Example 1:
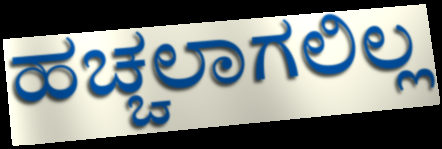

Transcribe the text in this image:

ಹಚ್ಚಲಾಗಲಿಲ್ಲ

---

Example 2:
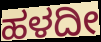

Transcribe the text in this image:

ಹಳದೀ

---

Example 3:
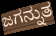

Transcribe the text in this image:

ಜಗನ್ನುತ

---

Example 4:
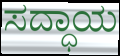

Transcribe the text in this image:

ಸದ್ಧಾಯ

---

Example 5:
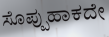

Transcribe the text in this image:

ಸೊಪ್ಪುಹಾಕದೇ